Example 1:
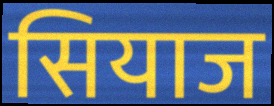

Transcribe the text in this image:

सियाज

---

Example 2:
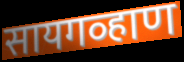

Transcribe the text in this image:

सायगव्हाण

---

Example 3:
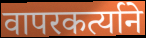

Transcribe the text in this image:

वापरकर्त्याने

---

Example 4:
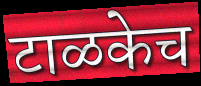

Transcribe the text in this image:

टाळकेच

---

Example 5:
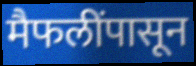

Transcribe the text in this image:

मैफलींपासून